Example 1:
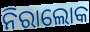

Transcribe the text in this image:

ନିରାଲୋକ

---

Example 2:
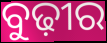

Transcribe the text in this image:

ବୁଢ଼ୀର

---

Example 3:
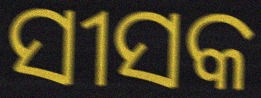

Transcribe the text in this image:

ସୀସକ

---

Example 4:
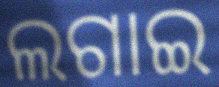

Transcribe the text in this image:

ଲଗାଇ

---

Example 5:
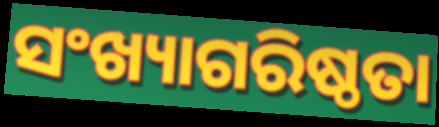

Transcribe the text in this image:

ସଂଖ୍ୟାଗରିଷ୍ଠତା